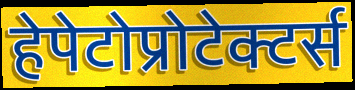
हेपेटोप्रोटेक्टर्स